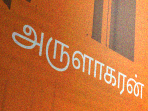
அருளாகரன்